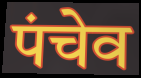
पंचेव